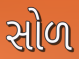
સોળ